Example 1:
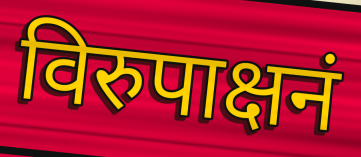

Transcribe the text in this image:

विरुपाक्षनं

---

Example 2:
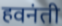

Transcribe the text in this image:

हवनंती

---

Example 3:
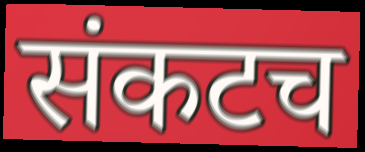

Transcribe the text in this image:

संकटच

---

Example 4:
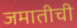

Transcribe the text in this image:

जमातीची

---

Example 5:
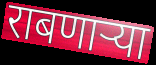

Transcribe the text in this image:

राबणार्‍या